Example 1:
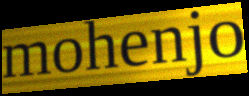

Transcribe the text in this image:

mohenjo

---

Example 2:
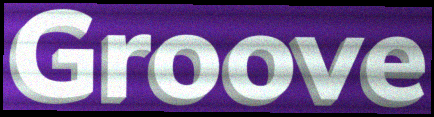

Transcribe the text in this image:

Groove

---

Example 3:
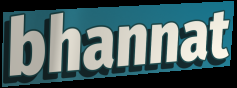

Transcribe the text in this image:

bhannat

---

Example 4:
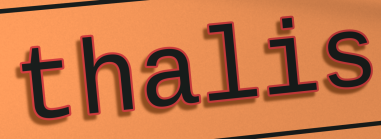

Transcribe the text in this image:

thalis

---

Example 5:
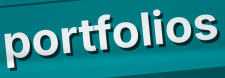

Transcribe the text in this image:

portfolios